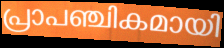
പ്രാപഞ്ചികമായി